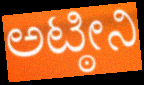
ಅಟ್ಠೀನಿ